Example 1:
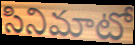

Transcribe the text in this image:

సినిమాటో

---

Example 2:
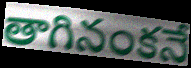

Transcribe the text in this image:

తాగినంకనే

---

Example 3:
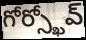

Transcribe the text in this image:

గోర్స్ఖోవ్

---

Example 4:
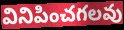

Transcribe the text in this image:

వినిపించగలవు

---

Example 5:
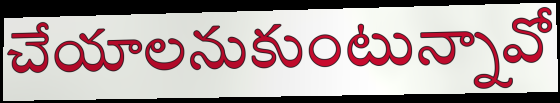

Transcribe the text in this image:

చేయాలనుకుంటున్నావో